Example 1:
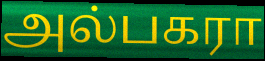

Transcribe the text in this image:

அல்பகரா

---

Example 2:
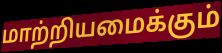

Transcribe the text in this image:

மாற்றியமைக்கும்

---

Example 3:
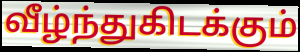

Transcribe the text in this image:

வீழ்ந்துகிடக்கும்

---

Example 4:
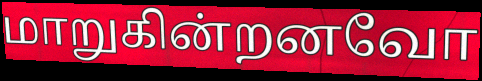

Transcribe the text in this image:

மாறுகின்றனவோ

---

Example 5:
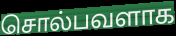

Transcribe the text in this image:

சொல்பவளாக